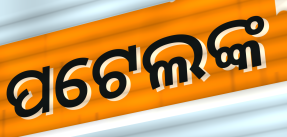
ପଟେଲଙ୍କ